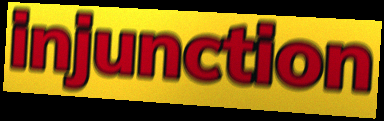
injunction